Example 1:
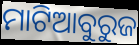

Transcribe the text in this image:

ମାଟିଆବୁରୁଜ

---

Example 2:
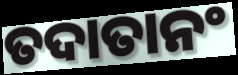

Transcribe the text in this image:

ତଦାତାନଂ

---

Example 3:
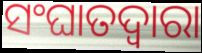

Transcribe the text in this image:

ସଂଘାତଦ୍ୱାରା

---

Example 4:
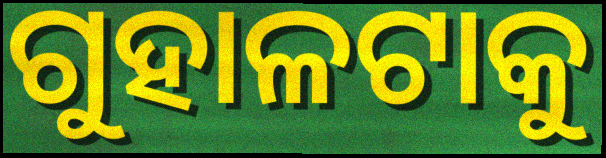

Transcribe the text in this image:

ଗୁହାଳଟାକୁ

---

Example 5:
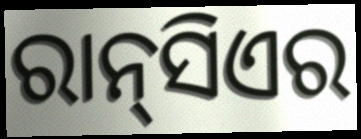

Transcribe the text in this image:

ରାନ୍‌ସିଏର